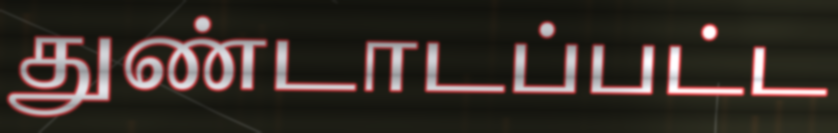
துண்டாடப்பட்ட